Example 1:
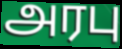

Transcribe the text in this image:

அரபு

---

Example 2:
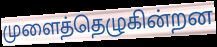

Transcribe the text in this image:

முளைத்தெழுகின்றன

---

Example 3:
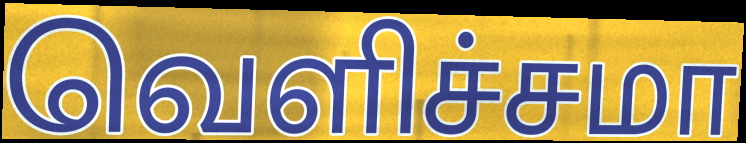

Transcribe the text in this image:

வெளிச்சமா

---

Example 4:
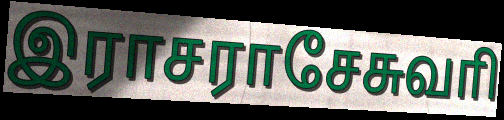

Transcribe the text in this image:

இராசராசேசுவரி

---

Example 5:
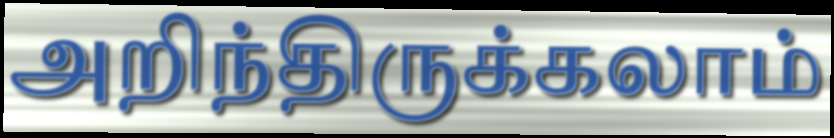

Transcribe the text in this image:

அறிந்திருக்கலாம்